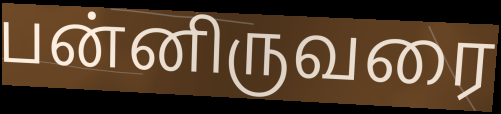
பன்னிருவரை